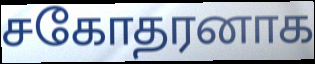
சகோதரனாக